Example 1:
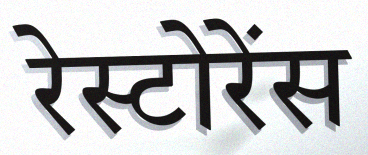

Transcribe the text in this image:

रेस्टोरेंस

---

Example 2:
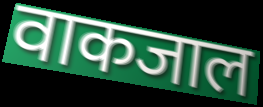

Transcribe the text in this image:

वाकजाल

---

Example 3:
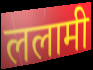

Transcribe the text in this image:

ललामी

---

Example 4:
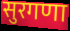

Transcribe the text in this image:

सुरगणा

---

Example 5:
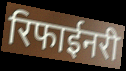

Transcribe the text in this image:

रिफाईनरी